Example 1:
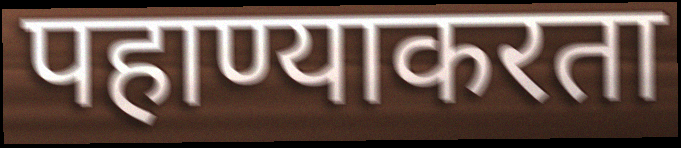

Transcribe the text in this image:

पहाण्याकरता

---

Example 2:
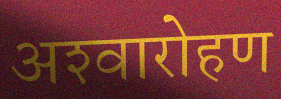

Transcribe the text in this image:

अश्वारोहण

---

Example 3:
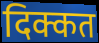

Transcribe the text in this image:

दिक्कत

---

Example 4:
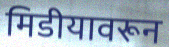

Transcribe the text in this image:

मिडीयावरून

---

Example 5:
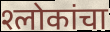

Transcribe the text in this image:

श्लोकांचा